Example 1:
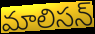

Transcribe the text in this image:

మాలిసన్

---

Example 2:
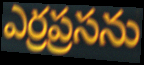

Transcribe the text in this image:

ఎర్రప్రసను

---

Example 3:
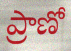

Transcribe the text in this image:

ప్రాణో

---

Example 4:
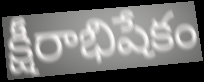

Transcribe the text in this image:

క్షీరాభిషేకం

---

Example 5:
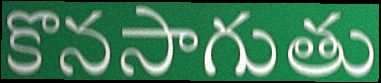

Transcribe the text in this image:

కొనసాగుతు